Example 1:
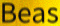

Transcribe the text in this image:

Beas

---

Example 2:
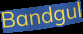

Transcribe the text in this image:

Bandgul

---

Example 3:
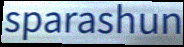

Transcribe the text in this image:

sparashun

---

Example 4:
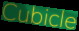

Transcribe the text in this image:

Cubicle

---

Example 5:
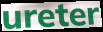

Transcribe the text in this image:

ureter